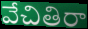
వేచితిరా